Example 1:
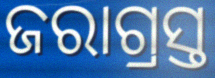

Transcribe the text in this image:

ଜରାଗ୍ରସ୍ତ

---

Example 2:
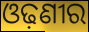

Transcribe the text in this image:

ଓଢ଼ଣୀର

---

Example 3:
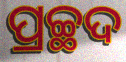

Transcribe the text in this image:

ପ୍ରଚ୍ଛଦ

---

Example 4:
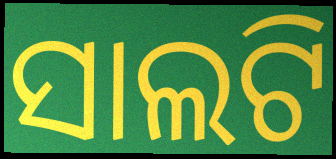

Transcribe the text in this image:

ସାଲଟି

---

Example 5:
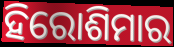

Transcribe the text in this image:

ହିରୋଶିମାର